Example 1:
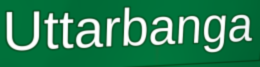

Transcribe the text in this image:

Uttarbanga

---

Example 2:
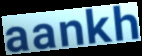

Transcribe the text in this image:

aankh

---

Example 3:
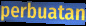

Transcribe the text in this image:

perbuatan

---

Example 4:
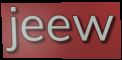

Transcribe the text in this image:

jeew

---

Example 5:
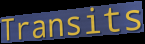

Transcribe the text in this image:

Transits